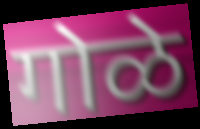
गोळे